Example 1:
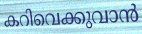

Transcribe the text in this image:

കറിവെക്കുവാൻ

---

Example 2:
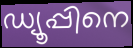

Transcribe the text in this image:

ഡ്യൂപ്പിനെ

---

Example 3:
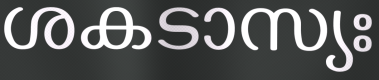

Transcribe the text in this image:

ശകടാസ്യഃ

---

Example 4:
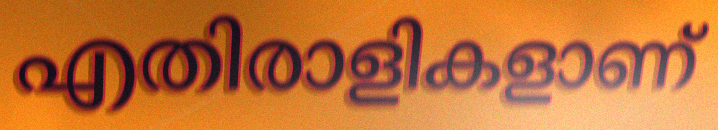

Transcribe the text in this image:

എതിരാളികളാണ്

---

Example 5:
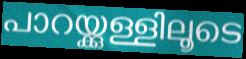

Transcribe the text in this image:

പാറയ്ക്കുള്ളിലൂടെ